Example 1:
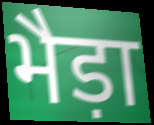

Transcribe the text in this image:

भैड़ा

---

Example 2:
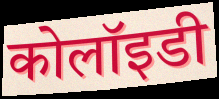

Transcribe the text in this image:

कोलॉइडी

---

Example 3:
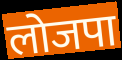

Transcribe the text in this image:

लोजपा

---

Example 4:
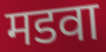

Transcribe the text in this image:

मडवा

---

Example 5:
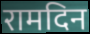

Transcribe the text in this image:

रामदिन